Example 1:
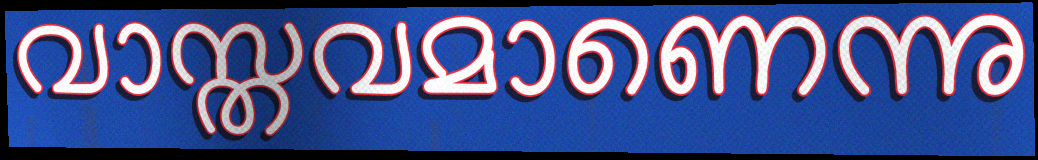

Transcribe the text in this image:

വാസ്തവമാണെന്നു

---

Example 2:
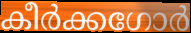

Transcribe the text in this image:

കീർക്കഗോർ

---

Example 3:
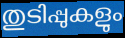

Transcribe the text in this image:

തുടിപ്പുകളും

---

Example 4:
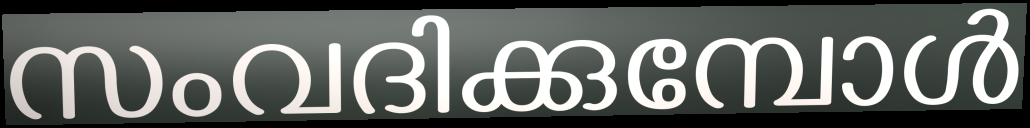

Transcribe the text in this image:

സംവദിക്കുമ്പോൾ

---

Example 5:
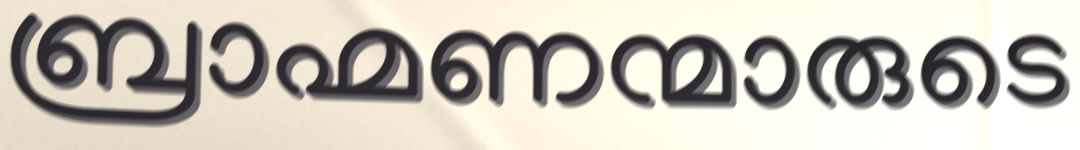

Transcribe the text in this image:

ബ്രാഹ്മണന്മാരുടെ